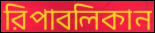
রিপাবলিকান